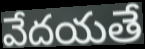
వేదయతే